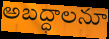
అబద్ధాలనూ